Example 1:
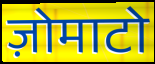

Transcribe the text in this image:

ज़ोमाटो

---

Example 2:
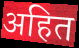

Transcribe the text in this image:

अहित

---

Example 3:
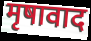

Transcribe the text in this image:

मृषावाद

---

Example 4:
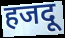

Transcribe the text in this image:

हजदू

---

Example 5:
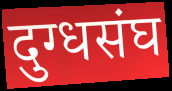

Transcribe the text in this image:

दुग्धसंघ